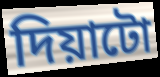
দিয়াটো